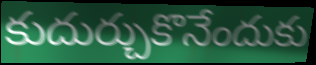
కుదుర్చుకొనేందుకు